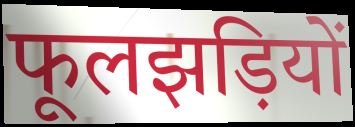
फूलझड़ियों